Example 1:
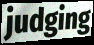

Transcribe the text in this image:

judging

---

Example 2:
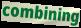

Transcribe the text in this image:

combining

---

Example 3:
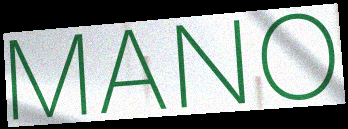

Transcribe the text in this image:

MANO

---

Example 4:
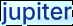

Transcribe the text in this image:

jupiter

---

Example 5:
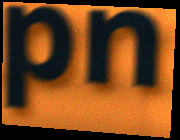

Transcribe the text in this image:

pn